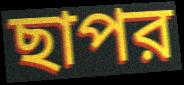
ছাপর